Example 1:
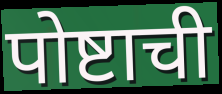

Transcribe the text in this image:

पोष्टाची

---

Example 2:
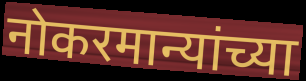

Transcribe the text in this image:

नोकरमान्यांच्या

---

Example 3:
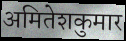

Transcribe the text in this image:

अमितेशकुमार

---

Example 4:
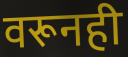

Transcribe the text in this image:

वरूनही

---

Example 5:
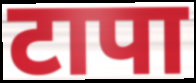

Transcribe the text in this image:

टापा